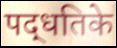
पद्धतिके